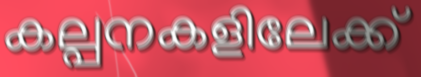
കല്പനകളിലേക്ക്